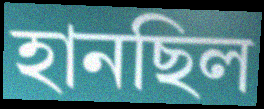
হানছিল